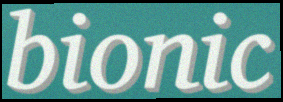
bionic